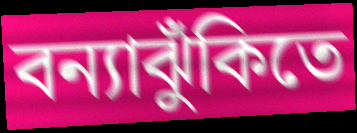
বন্যাঝুঁকিতে